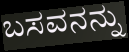
ಬಸವನನ್ನು